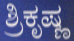
ಶ್ರಿಕೃಷ್ಣ